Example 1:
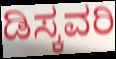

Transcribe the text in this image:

ಡಿಸ್ಕವರಿ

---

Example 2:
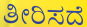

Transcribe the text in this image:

ತೀರಿಸದೆ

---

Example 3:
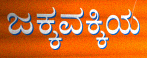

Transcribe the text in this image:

ಜಕ್ಕವಕ್ಕಿಯ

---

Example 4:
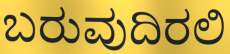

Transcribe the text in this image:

ಬರುವುದಿರಲಿ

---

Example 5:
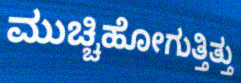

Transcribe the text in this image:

ಮುಚ್ಚಿಹೋಗುತ್ತಿತ್ತು